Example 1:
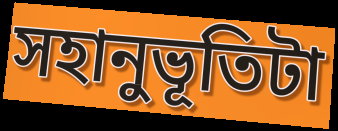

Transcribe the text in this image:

সহানুভূতিটা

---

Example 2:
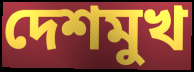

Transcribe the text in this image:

দেশমুখ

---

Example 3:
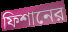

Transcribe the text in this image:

ফিশানের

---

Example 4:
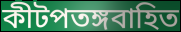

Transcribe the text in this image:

কীটপতঙ্গবাহিত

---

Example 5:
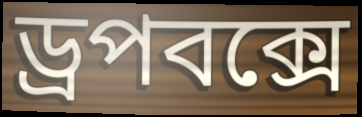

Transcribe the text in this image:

ড্রপবক্সে